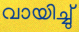
വായിച്ചു്